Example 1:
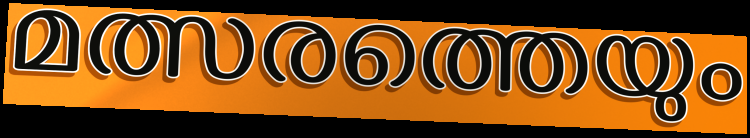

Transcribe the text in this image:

മത്സരത്തെയും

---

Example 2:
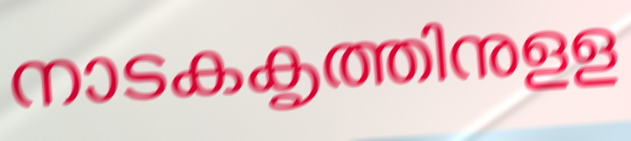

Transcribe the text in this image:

നാടകകൃത്തിനുളള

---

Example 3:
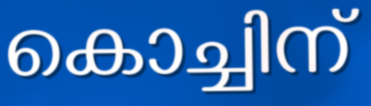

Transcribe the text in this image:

കൊച്ചിന്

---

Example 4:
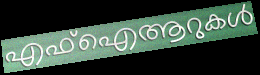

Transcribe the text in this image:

എഫ്ഐആറുകൾ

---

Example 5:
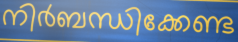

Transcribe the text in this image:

നിർബന്ധിക്കേണ്ട